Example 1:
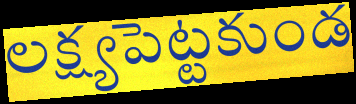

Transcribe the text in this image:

లక్ష్యపెట్టకుండ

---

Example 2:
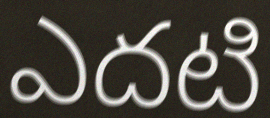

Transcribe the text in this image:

ఎదటి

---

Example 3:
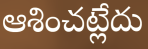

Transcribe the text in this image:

ఆశించట్లేదు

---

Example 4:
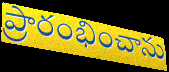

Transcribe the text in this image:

ప్రారంభించాను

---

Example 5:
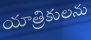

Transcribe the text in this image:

యాత్రికులను